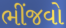
ભીંજવો